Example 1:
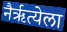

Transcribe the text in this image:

नैर्ऋत्येला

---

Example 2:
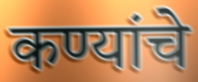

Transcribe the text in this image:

कण्यांचे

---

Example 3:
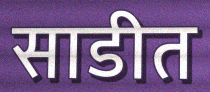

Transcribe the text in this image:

साडीत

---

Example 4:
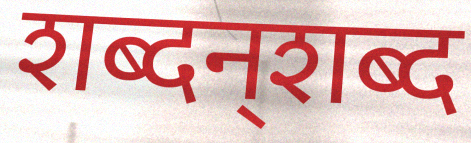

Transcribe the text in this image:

शब्दन्‌शब्द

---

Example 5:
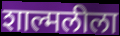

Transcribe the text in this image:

शाल्मलीला